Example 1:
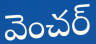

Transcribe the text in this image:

వెంచర్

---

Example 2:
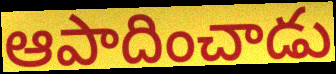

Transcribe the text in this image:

ఆపాదించాడు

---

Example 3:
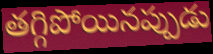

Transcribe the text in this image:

తగ్గిపోయినప్పుడు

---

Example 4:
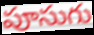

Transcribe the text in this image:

పూసుగు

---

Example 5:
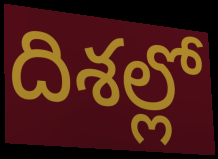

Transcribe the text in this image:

దిశల్లో